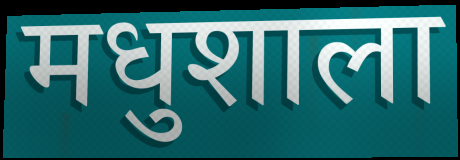
मधुशाला